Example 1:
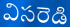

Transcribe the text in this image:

విసరెడి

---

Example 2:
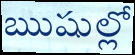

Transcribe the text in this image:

ఋషుల్లో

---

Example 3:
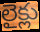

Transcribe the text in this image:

లైక్లు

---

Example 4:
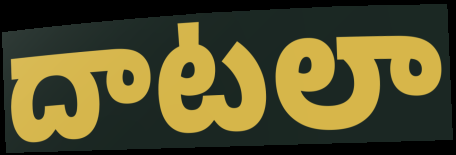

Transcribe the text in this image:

దాటలా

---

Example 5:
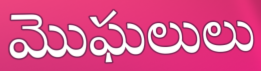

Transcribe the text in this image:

మొఘలులు